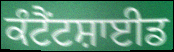
ਕੰਟੈਂਟਸ਼ਾਈਡ